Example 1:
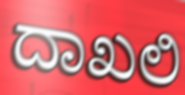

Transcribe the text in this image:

ದಾಖಲಿ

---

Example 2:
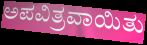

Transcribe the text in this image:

ಅಪವಿತ್ರವಾಯಿತು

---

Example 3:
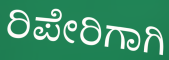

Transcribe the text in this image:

ರಿಪೇರಿಗಾಗಿ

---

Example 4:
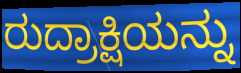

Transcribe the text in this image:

ರುದ್ರಾಕ್ಷಿಯನ್ನು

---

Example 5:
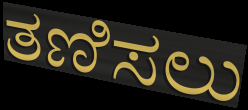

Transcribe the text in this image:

ತಣಿಸಲು